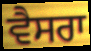
ਵੈਸਰਾ